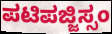
ಪಟಿಪಜ್ಜಿಸ್ಸಂ